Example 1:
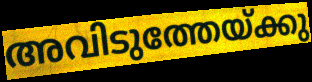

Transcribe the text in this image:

അവിടുത്തേയ്ക്കു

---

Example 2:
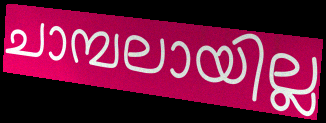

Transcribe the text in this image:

ചാമ്പലായില്ല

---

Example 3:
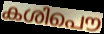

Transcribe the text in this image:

കശിപൌ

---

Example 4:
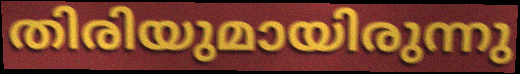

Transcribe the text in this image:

തിരിയുമായിരുന്നു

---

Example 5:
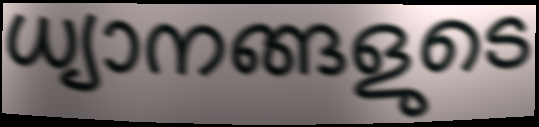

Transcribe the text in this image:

ധ്യാനങ്ങളുടെ